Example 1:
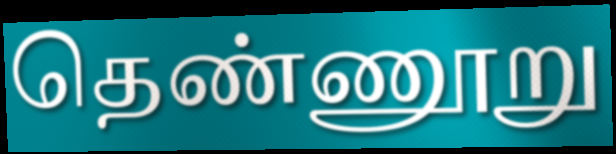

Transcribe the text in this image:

தெண்ணூறு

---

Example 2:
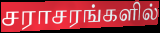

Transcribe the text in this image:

சராசரங்களில்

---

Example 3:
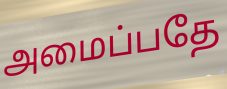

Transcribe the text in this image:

அமைப்பதே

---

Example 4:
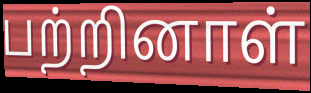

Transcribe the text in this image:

பற்றினாள்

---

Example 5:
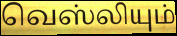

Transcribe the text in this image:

வெஸ்லியும்